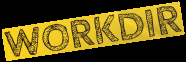
WORKDIR